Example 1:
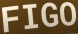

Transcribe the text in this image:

FIGO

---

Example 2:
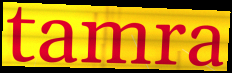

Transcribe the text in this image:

tamra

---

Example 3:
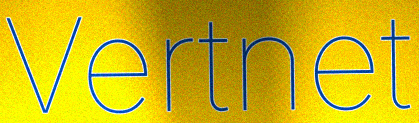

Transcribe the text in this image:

Vertnet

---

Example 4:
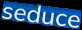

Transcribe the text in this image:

seduce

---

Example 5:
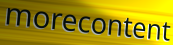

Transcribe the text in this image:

morecontent